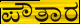
ಪೌತಾರ